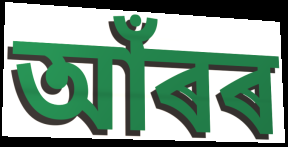
আঁৰৰ